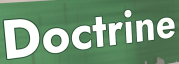
Doctrine